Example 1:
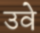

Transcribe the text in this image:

उवे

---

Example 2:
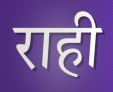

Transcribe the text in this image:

राही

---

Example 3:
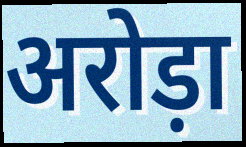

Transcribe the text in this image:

अरोड़ा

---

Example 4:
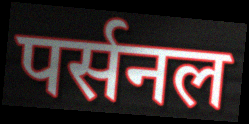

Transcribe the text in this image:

पर्सनल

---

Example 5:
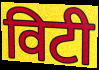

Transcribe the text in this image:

विटी